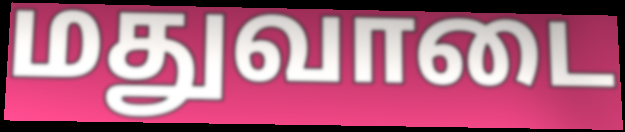
மதுவாடை